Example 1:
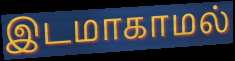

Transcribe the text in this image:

இடமாகாமல்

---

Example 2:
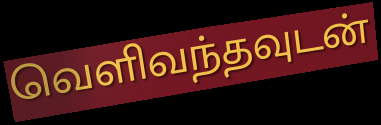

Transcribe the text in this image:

வெளிவந்தவுடன்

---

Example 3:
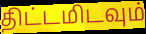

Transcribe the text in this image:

திட்டமிடவும்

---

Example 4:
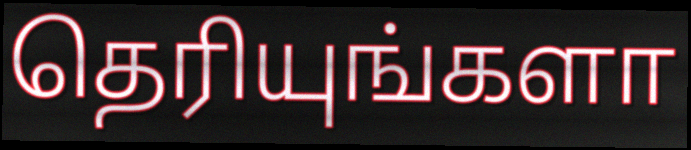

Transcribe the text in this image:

தெரியுங்களா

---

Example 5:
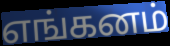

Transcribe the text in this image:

எங்கனம்